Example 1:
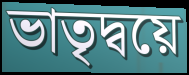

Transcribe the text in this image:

ভাতৃদ্বয়ে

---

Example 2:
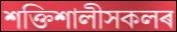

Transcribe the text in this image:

শক্তিশালীসকলৰ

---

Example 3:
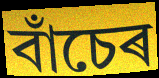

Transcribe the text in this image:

বাঁচেৰ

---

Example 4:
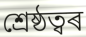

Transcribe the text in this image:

শ্ৰেষ্ঠত্বৰ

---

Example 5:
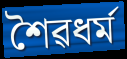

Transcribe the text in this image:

শৈৱধৰ্ম